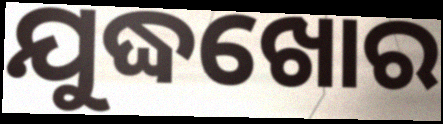
ଯୁଦ୍ଧଖୋର